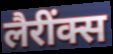
लैरींक्स